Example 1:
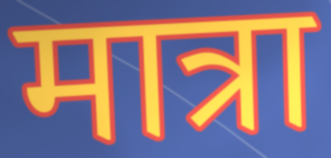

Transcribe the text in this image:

मात्रा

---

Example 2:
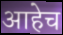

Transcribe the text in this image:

आहेच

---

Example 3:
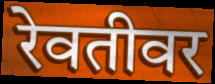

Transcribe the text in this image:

रेवतीवर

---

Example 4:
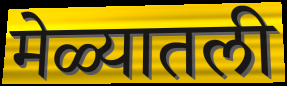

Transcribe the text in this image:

मेळ्यातली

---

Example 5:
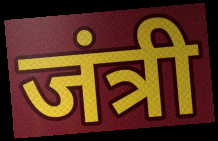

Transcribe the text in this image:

जंत्री